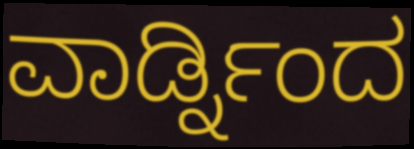
ವಾರ್ಡ್ನಿಂದ